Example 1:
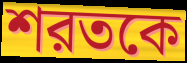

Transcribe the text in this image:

শরতকে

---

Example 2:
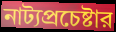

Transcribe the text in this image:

নাট্যপ্রচেষ্টার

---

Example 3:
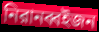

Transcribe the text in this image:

নিরানব্বইজন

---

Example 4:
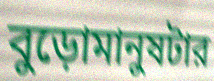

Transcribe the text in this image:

বুড়োমানুষটার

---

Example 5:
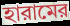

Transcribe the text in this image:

হারামের